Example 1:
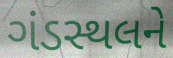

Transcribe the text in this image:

ગંડસ્થલને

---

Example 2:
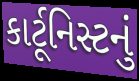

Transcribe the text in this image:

કાર્ટૂનિસ્ટનું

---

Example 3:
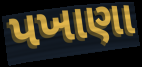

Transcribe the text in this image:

પખાણા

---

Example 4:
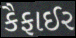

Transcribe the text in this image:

કૈફાઈર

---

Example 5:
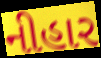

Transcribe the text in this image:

નીહાર